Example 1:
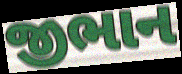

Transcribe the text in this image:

જીભાન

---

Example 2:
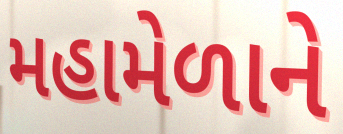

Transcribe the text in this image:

મહામેળાને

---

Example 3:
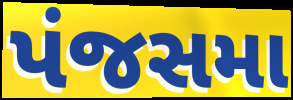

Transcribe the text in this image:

પંજસમા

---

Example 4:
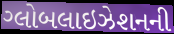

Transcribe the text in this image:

ગ્લોબલાઇઝેશનની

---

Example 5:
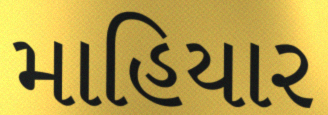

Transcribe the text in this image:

માહિયાર